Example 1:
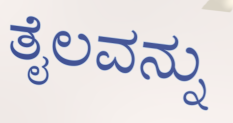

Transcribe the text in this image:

ತೈಲವನ್ನು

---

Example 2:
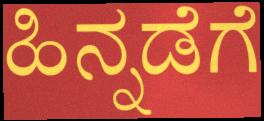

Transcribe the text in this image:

ಹಿನ್ನಡೆಗೆ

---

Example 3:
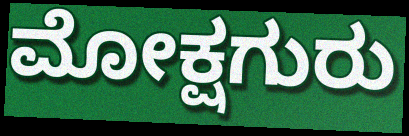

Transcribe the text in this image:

ಮೋಕ್ಷಗುರು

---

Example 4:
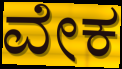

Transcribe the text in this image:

ವೇಕ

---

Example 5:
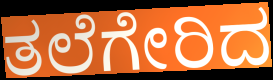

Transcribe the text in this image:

ತಲೆಗೇರಿದ